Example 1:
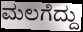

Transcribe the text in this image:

ಮಲಗೆದ್ದು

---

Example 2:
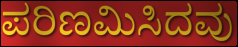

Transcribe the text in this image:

ಪರಿಣಮಿಸಿದವು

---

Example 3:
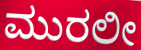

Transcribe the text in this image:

ಮುರಲೀ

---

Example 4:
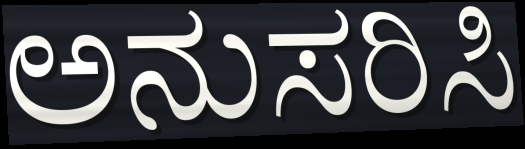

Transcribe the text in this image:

ಅನುಸರಿಸಿ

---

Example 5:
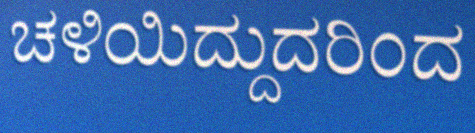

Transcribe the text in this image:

ಚಳಿಯಿದ್ದುದರಿಂದ